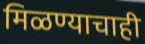
मिळण्याचाही